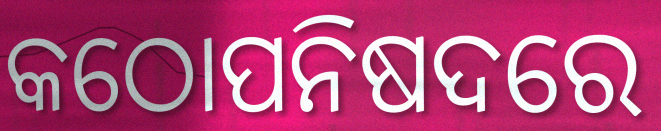
କଠୋପନିଷଦରେ